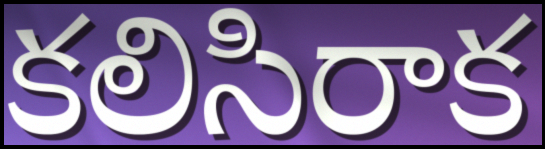
కలిసిరాక